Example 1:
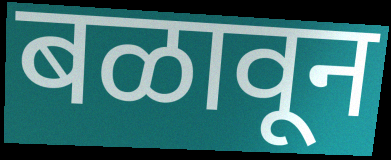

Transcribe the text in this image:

बळावून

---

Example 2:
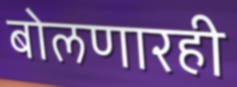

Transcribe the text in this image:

बोलणारही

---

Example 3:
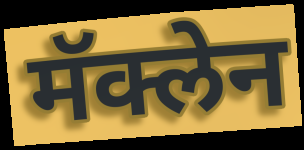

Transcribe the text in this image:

मॅक्लेन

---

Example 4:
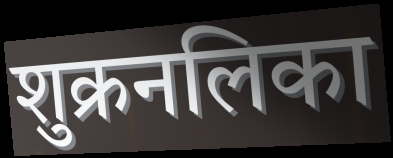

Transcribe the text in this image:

शुक्रनलिका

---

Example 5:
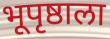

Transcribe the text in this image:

भूपृष्ठाला